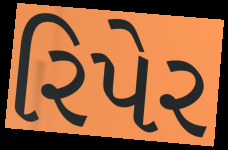
રિપેર